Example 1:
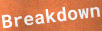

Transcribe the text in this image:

Breakdown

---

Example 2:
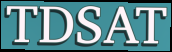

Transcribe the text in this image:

TDSAT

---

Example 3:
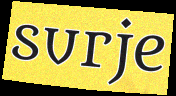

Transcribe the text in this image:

surje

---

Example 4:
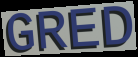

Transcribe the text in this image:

GRED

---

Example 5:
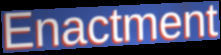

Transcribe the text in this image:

Enactment